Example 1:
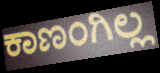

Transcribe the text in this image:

ಕಾಣಂಗಿಲ್ಲ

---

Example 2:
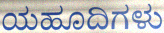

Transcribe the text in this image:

ಯಹೂದಿಗಳು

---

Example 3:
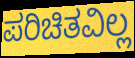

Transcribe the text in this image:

ಪರಿಚಿತವಿಲ್ಲ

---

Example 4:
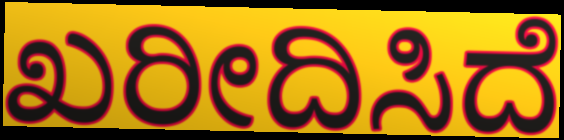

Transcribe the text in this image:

ಖರೀದಿಸಿದೆ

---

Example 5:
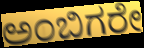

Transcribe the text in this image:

ಅಂಬಿಗರೇ